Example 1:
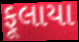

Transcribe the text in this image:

ફૂલાયા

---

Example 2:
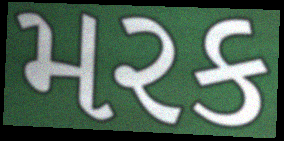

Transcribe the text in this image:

મરક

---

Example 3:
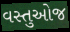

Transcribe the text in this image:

વસ્તુઓજ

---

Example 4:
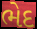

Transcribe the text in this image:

ભેદ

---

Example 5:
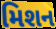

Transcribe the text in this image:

મિશન